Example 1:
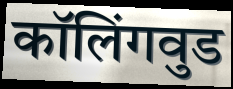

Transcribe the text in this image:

कॉलिंगवुड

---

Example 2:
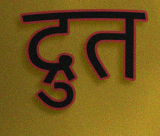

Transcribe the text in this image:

द्रुत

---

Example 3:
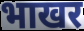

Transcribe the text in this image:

भाखर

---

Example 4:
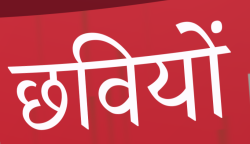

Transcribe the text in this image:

छवियों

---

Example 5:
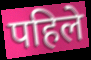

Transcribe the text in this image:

पहिले